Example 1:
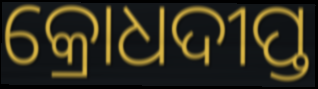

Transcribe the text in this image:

କ୍ରୋଧଦୀପ୍ତ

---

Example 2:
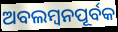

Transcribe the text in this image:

ଅବଲମ୍ୱନପୂର୍ବକ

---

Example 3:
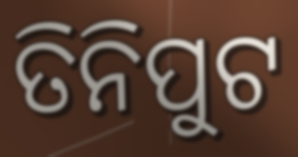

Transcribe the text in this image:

ତିନିପୁଟ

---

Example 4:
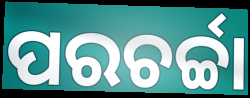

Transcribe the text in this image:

ପରଚର୍ଚ୍ଚା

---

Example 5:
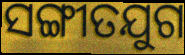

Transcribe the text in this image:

ସଙ୍ଗୀତଯୁଗ